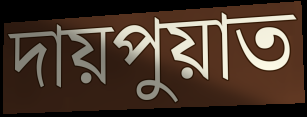
দায়পুয়াত